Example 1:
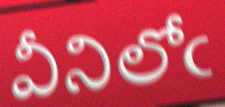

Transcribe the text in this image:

వీనిలోఁ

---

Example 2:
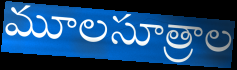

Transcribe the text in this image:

మూలసూత్రాల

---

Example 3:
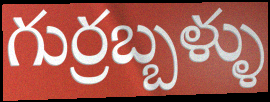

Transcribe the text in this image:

గుర్రబ్బళ్ళు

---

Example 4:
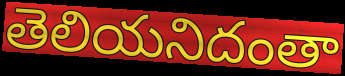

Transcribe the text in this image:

తెలియనిదంతా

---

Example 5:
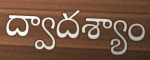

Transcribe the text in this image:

ద్వాదశ్యాం